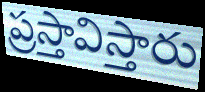
ప్రస్తావిస్తారు